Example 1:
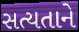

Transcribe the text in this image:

સત્યતાને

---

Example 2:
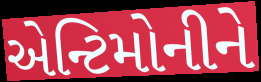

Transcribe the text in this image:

એન્ટિમોનીને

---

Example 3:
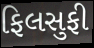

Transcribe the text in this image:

ફિલસુફી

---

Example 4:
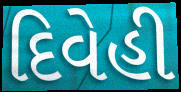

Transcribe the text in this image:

દિવેહી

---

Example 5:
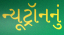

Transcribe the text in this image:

ન્યૂટ્રૉનનું